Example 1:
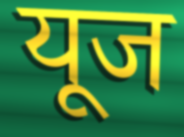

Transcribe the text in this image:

यूज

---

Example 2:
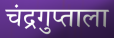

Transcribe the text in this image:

चंद्रगुप्ताला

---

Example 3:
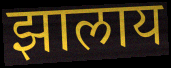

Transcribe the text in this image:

झालाय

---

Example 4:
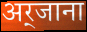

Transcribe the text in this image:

अर्जाना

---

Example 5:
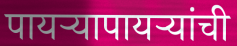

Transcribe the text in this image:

पायऱ्यापायऱ्यांची